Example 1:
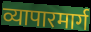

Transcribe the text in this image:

व्यापारमार्ग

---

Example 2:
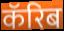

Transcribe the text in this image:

कॅरिब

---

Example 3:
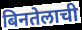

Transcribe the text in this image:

बिनतेलाची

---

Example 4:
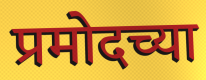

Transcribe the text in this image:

प्रमोदच्या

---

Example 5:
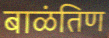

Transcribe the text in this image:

बाळंतिण